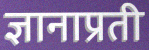
ज्ञानाप्रती